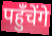
पहुँचेंगे